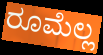
ರೂಮೆಲ್ಲ